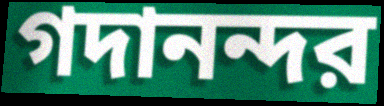
গদানন্দর